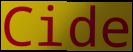
Cide